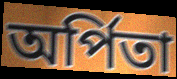
অর্পিতা